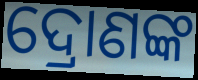
ଦ୍ରୋଣଙ୍କ